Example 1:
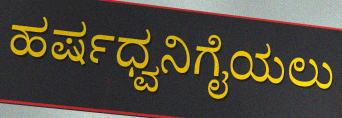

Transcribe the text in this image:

ಹರ್ಷಧ್ವನಿಗೈಯಲು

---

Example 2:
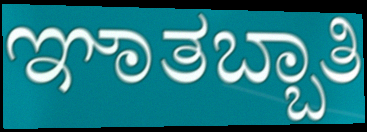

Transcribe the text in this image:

ಞಾತಬ್ಬಾತಿ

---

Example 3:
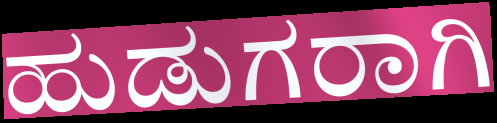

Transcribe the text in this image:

ಹುಡುಗರಾಗಿ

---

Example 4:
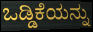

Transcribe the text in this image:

ಒಡ್ಡಿಕೆಯನ್ನು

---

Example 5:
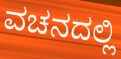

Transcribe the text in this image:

ವಚನದಲ್ಲಿ